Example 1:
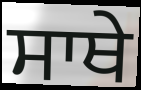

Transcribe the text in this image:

ਸਾਥੇ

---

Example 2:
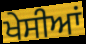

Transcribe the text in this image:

ਖੇਸੀਆਂ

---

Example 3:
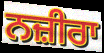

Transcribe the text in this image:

ਨਜ਼ੀਰਾ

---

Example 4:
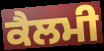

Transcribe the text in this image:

ਕੈਲਮੀ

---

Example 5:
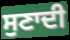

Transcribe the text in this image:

ਸੁਣਾਦੀ